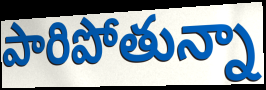
పారిపోతున్నా